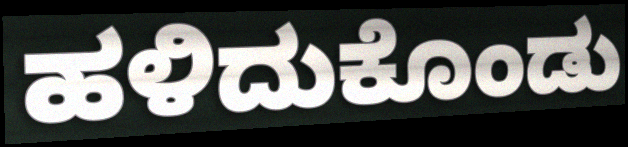
ಹಳಿದುಕೊಂಡು